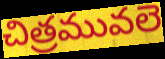
చిత్రమువలె